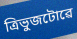
ত্ৰিভুজটোৱে